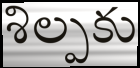
శిల్పకు